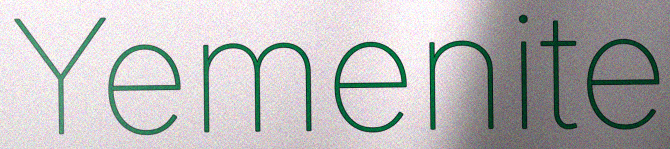
Yemenite